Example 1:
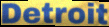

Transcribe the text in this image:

Detroit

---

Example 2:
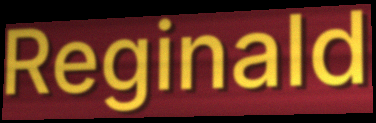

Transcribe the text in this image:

Reginald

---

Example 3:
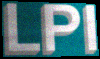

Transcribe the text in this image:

LPI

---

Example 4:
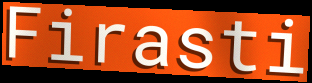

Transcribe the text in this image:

Firasti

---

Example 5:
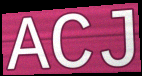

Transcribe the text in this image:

ACJ